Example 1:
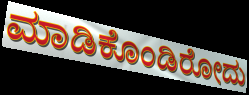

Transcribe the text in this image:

ಮಾಡಿಕೊಂಡಿರೋದು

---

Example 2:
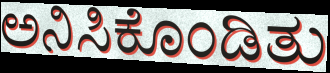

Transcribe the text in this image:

ಅನಿಸಿಕೊಂಡಿತು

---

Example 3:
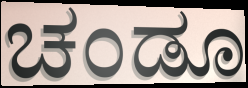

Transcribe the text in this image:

ಚಂಡೂ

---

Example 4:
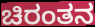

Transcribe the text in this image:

ಚಿರಂತನ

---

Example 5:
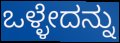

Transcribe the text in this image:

ಒಳ್ಳೇದನ್ನು